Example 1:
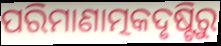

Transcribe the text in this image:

ପରିମାଣାତ୍ମକଦୃଷ୍ଟିରୁ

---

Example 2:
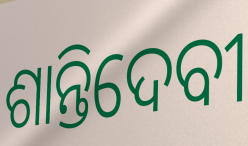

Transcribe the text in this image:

ଶାନ୍ତିଦେବୀ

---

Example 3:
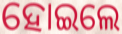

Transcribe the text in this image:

ହୋଇଲେ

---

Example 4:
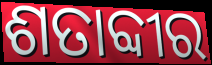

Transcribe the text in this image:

ଶତାବ୍ଦୀର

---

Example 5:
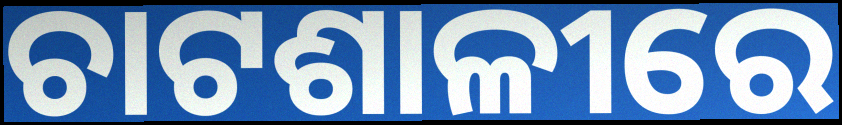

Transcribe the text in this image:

ଚାଟଶାଳୀରେ